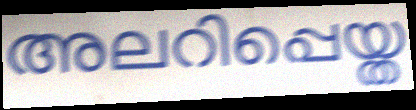
അലറിപ്പെയ്ത